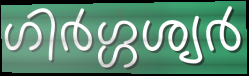
ഗിർഗ്ഗശ്യർ